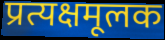
प्रत्यक्षमूलक